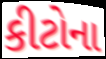
કીટોના